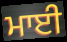
ਮਾਈ